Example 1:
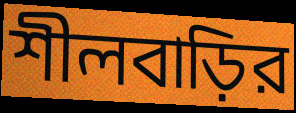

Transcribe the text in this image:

শীলবাড়ির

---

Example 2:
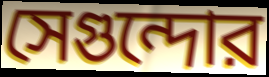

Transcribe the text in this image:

সেগুন্দোর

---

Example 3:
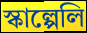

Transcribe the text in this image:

স্কাল্পেলি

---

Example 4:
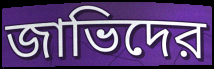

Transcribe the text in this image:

জাভিদের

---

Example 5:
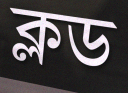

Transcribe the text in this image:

ক্লড